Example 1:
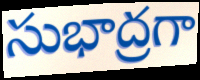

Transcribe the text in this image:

సుభాద్రగా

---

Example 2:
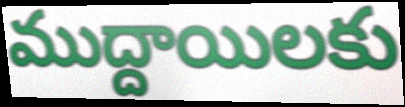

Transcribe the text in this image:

ముద్దాయిలకు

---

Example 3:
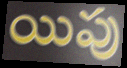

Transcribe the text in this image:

యిపు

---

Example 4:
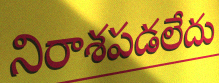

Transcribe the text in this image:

నిరాశపడలేదు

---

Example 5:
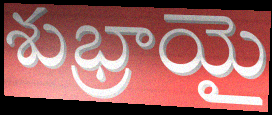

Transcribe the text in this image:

శుభ్రాయై